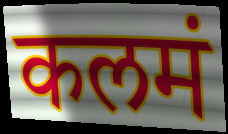
कलमं